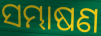
ସମ୍ଭାଷଣ